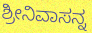
ಶ್ರೀನಿವಾಸನ್ನ